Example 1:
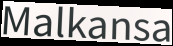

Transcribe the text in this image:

Malkansa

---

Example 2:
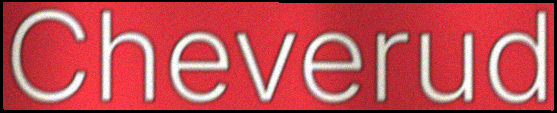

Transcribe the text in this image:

Cheverud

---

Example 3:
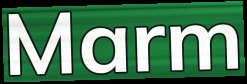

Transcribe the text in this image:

Marm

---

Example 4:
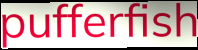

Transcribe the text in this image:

pufferfish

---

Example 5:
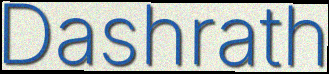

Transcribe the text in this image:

Dashrath